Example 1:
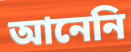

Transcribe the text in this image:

আনেনি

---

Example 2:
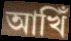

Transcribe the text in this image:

আখিঁ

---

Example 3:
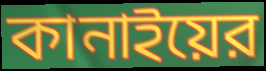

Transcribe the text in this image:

কানাইয়ের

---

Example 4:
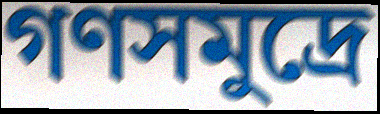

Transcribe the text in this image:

গণসমুদ্রে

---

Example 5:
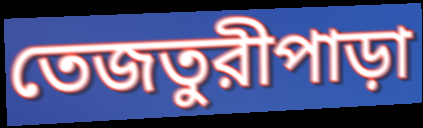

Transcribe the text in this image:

তেজতুরীপাড়া